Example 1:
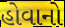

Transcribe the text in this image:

હોવાનો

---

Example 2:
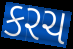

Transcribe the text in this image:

કરચ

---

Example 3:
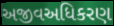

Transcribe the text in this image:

અજીવઅધિકરણ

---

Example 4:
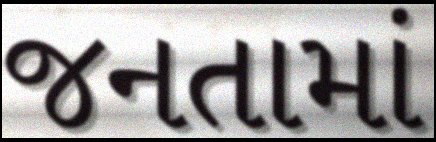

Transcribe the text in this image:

જનતામાં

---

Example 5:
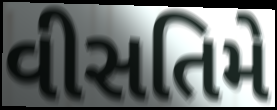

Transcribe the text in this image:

વીસતિમે